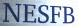
NESFB